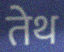
तेथ